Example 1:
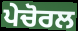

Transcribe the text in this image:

ਪੇਚੋਰਲ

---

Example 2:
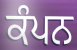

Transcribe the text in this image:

ਕੰਪਨ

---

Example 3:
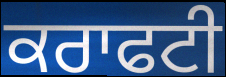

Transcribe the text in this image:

ਕਰਾਫਟੀ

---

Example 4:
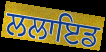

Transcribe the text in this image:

ਲਲਾਇਡ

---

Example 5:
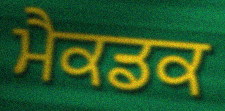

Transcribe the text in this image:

ਮੈਕਡਕ